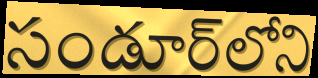
సండూర్‌లోని